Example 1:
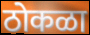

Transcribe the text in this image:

ठोकळा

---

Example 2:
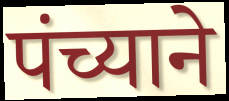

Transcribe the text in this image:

पंच्याने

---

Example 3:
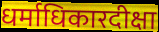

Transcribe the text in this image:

धर्माधिकारदीक्षा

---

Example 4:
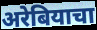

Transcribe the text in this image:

अरेबियाचा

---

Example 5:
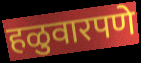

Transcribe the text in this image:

हळुवारपणे